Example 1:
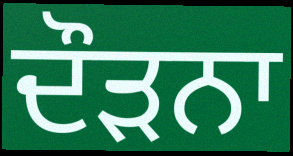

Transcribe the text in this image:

ਦੌੜਨਾ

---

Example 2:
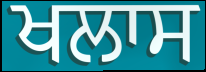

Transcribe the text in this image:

ਖਲਾਸ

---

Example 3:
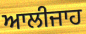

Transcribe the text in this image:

ਆਲੀਜਾਹ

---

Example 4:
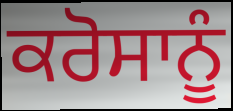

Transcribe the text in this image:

ਕਰੋਸਾਨੂੰ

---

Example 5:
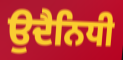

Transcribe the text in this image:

ਉਦੈਨਿਧੀ